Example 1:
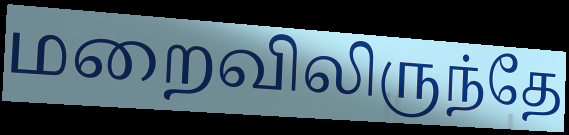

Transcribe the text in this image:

மறைவிலிருந்தே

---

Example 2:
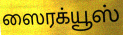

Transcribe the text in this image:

ஸைரக்யூஸ்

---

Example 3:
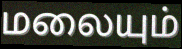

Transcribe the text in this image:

மலையும்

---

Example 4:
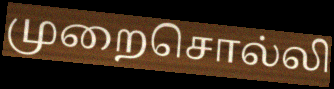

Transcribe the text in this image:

முறைசொல்லி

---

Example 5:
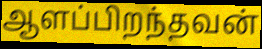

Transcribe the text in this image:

ஆளப்பிறந்தவன்